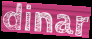
dinar